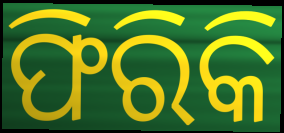
ଫିରିକି